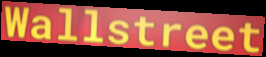
Wallstreet